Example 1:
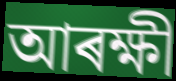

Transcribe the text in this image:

আৰক্ষী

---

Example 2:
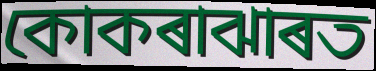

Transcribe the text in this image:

কোকৰাঝাৰত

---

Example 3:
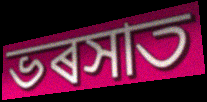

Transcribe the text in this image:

ভৰসাত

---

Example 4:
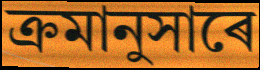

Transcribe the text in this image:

ক্ৰমানুসাৰে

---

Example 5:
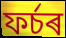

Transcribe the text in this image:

ফৰ্চৰ